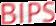
BIPS